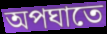
অপঘাতে